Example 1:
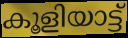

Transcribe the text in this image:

കൂളിയാട്ട്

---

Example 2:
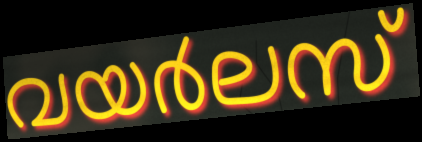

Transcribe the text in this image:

വയർലസ്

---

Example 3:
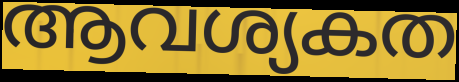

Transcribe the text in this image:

ആവശ്യകത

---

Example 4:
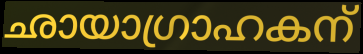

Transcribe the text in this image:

ഛായാഗ്രാഹകന്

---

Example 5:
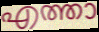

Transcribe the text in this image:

എത്താ